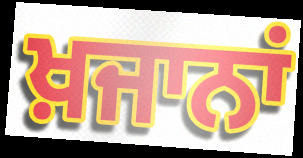
ਖ਼ਜਾਨਾਂ